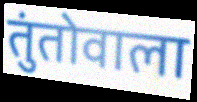
तुंतोवाला